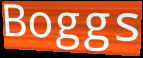
Boggs